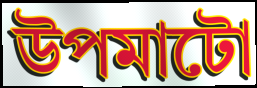
উপমাটো